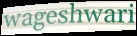
wageshwari